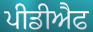
ਪੀਡੀਐਫ